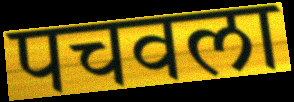
पचवला